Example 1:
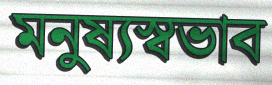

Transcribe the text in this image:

মনুষ্যস্বভাব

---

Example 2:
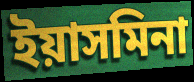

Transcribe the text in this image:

ইয়াসমিনা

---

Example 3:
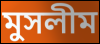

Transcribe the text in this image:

মুসলীম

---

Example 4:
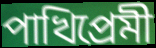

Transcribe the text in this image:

পাখিপ্রেমী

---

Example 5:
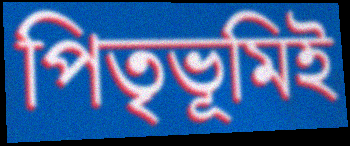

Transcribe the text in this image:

পিতৃভূমিই